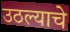
उठल्याचे